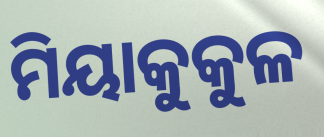
ମିୟାକୁକୁଳ